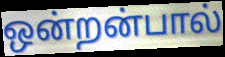
ஒன்றன்பால்